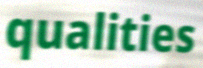
qualities